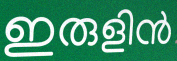
ഇരുളിൻ